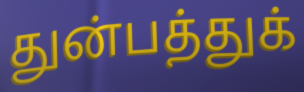
துன்பத்துக்